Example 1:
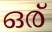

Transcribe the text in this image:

ഒര്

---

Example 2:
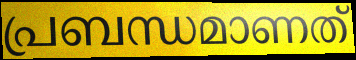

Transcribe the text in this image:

പ്രബന്ധമാണത്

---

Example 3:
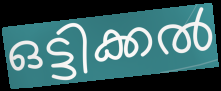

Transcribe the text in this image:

ഒട്ടിക്കൽ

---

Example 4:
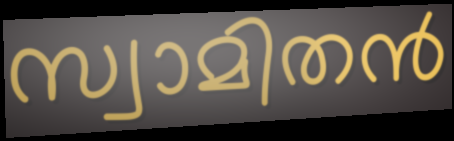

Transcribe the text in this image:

സ്വാമിതൻ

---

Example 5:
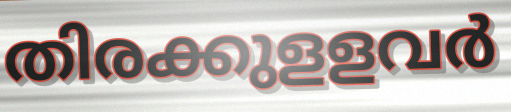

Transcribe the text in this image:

തിരക്കുളളവർ